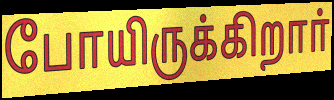
போயிருக்கிறார்